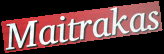
Maitrakas